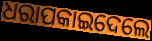
ଧରାପକାଇଦେଲେ